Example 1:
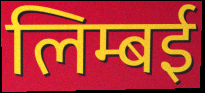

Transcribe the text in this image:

लिम्बई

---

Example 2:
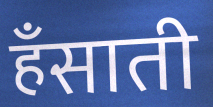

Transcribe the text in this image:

हँसाती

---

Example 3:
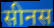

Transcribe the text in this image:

सीनस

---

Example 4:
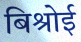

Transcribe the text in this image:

बिश्रोई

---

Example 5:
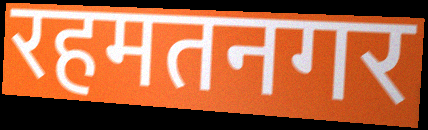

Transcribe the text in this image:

रहमतनगर